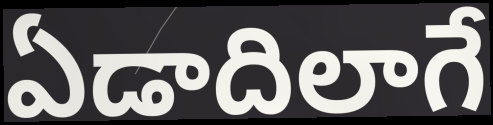
ఏడాదిలాగే